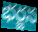
భర్జన